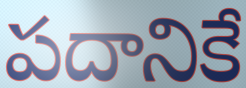
పదానికే